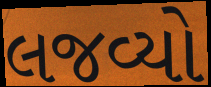
લજવ્યો